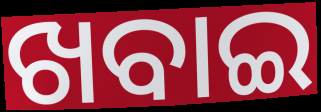
ଖବାଇ